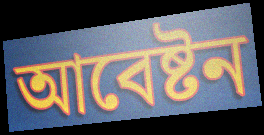
আবেষ্টন